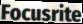
Focusrite